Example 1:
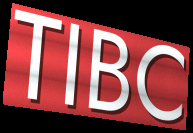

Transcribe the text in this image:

TIBC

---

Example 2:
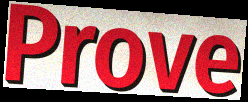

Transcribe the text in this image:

Prove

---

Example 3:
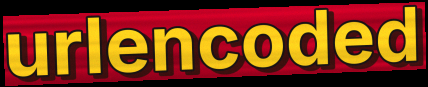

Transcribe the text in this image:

urlencoded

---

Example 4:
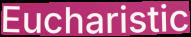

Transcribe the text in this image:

Eucharistic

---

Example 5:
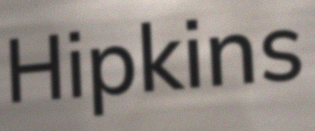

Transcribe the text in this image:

Hipkins